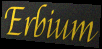
Erbium